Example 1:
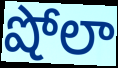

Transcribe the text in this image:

షోలా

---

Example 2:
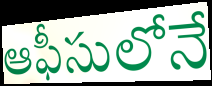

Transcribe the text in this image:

ఆఫీసులోనే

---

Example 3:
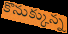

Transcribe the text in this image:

కొనుక్కున్న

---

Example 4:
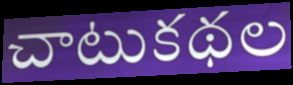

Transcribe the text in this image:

చాటుకథల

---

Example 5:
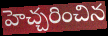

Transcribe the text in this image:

హెచ్చరించిన